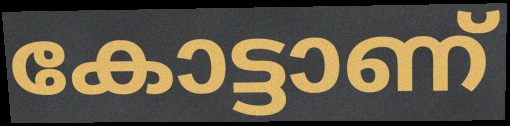
കോട്ടാണ്